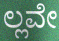
ಲ್ಲವೇ